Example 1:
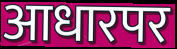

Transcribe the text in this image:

आधारपर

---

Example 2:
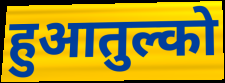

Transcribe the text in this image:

हुआतुल्को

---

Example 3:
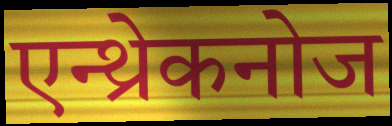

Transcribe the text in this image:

एन्थ्रेकनोज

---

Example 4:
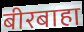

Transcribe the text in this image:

बीरबाहा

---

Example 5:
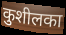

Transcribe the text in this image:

कुशीलका